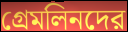
গ্রেমলিনদের